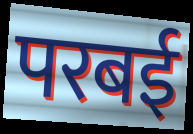
परबई